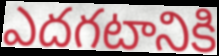
ఎదగటానికి